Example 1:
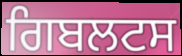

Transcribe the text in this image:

ਗਿਬਲਟਸ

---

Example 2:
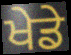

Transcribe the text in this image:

ਖੇਡੇ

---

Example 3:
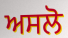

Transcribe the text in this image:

ਅਸਲੋ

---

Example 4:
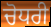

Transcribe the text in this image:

ਚੋਧਰੀ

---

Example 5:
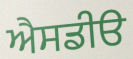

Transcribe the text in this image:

ਐਸਡੀੳ